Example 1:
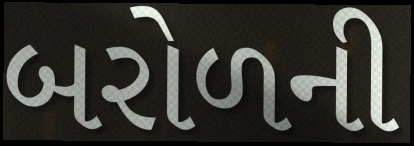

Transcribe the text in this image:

બરોળની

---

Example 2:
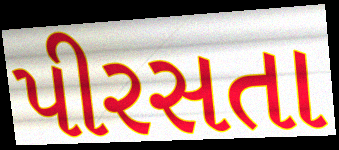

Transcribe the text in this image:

પીરસતા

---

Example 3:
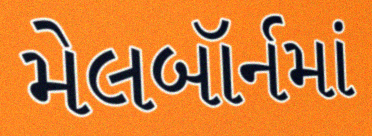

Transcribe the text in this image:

મેલબૉર્નમાં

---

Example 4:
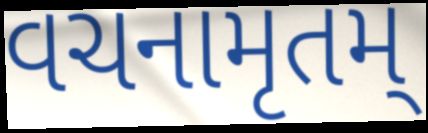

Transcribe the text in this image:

વચનામૃતમ્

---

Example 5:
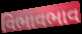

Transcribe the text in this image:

વિભાવભાવ